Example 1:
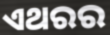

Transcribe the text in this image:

ଏଥରର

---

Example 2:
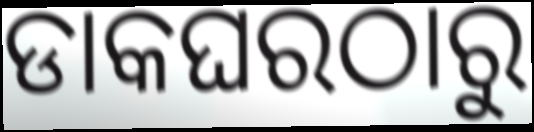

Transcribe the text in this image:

ଡାକଘରଠାରୁ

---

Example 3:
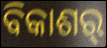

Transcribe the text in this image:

ବିକାଶର୍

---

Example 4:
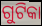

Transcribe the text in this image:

ଗୁଟିକା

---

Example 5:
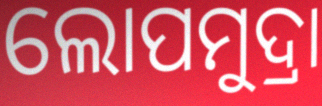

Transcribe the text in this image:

ଲୋପମୁଦ୍ରା